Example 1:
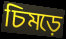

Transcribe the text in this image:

চিমড়ে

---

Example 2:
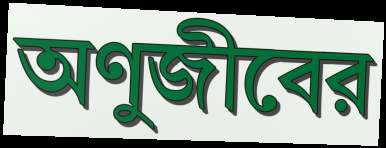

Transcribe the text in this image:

অণুজীবের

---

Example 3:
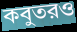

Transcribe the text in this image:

কবুতরও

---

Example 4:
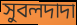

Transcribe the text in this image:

সুবলদাদা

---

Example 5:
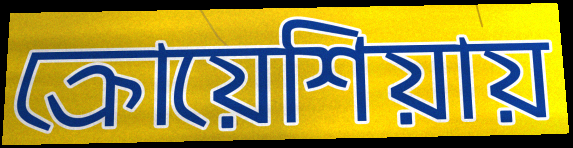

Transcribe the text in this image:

ক্রোয়েশিয়ায়